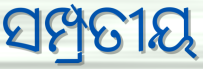
ସମ୍ପ୍ରତୀୟ